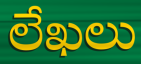
లేఖలు